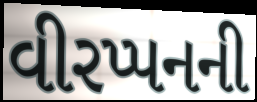
વીરપ્પનની